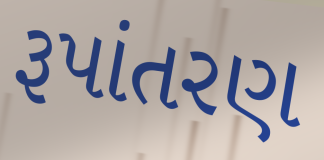
રૂપાંતરણ